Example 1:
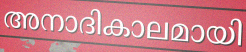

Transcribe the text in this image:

അനാദികാലമായി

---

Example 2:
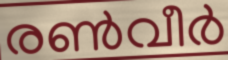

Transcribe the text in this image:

രൺവീർ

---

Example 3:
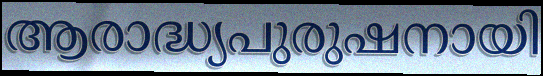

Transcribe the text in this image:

ആരാദ്ധ്യപുരുഷനായി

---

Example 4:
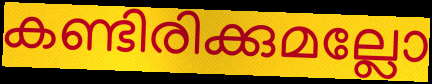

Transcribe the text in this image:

കണ്ടിരിക്കുമല്ലോ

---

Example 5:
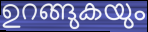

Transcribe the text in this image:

ഉറങ്ങുകയും